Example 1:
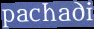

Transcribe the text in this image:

pachadi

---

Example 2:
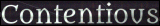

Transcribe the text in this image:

Contentious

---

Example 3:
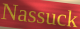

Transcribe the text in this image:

Nassuck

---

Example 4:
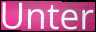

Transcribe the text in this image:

Unter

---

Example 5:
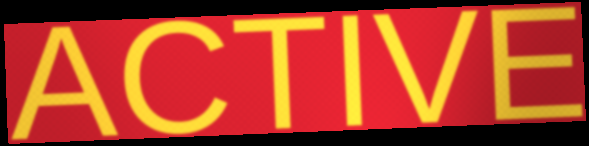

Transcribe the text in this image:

ACTIVE